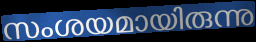
സംശയമായിരുന്നു